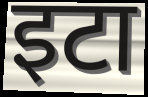
इटा